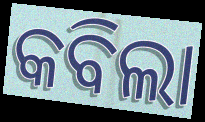
କବିଲା